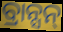
ବ୍ରାନ୍ସନ୍